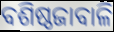
ବଶିଷ୍ଠଜାବାଳି